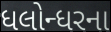
ધલોન્ધરના